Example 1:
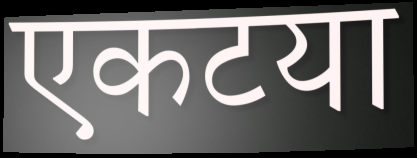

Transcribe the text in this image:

एकटया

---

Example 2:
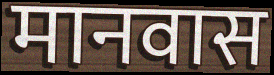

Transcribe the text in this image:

मानवास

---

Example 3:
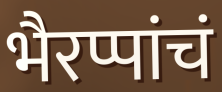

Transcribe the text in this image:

भैरप्पांचं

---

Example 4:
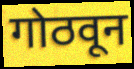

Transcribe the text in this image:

गोठवून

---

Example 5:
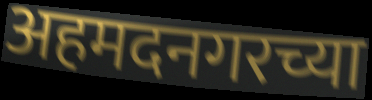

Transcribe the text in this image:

अहमदनगरच्या